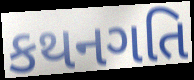
કથનગતિ